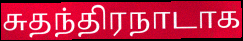
சுதந்திரநாடாக